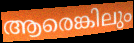
ആരെങ്കിലും